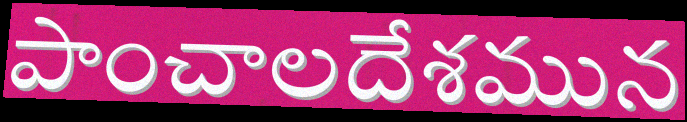
పాంచాలదేశమున